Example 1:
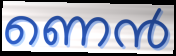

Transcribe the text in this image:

ണെൻ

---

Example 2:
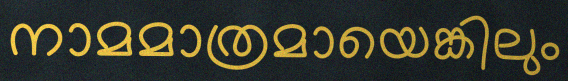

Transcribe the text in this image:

നാമമാത്രമായെങ്കിലും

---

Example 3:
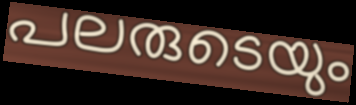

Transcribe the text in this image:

പലരുടെയും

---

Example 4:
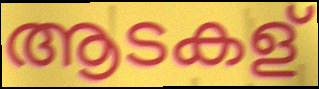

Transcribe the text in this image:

ആടകള്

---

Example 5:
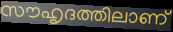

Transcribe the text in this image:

സൗഹൃദത്തിലാണ്